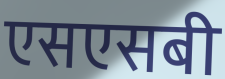
एसएसबी